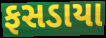
ફસડાયા